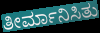
ತೀರ್ಮಾನಿಸಿತು